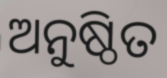
ଅନୁଷ୍ଠିତ